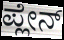
ಪ್ಲೇನ್